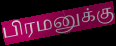
பிரமனுக்கு